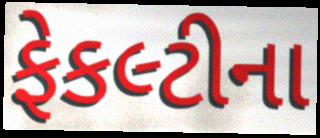
ફેકલ્ટીના